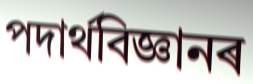
পদাৰ্থবিজ্ঞানৰ